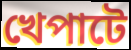
খেপাটে